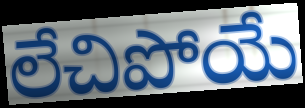
లేచిపోయే